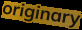
originary